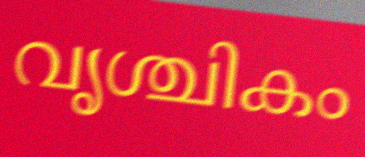
വൃശ്ചികം